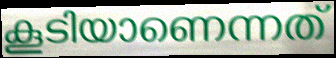
കൂടിയാണെന്നത്